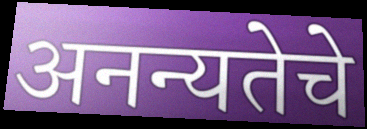
अनन्यतेचे